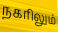
நகரிலும்